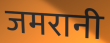
जमरानी